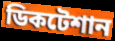
ডিকটেশান